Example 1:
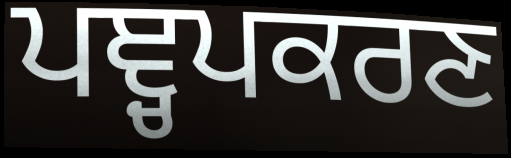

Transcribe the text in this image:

ਪਞ੍ਚਪਕਰਣ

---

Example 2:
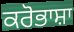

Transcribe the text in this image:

ਕਰੋਭਾਸ਼ਾ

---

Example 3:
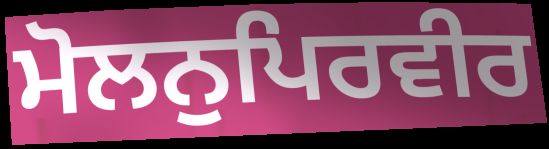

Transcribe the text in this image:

ਮੋਲਨੁਪਿਰਵੀਰ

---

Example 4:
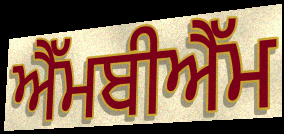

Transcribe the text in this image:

ਐੱਮਬੀਐੱਮ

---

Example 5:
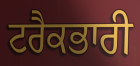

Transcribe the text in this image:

ਟਰੈਕਭਾਰੀ